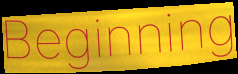
Beginning